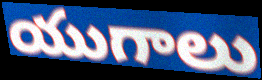
యుగాలు